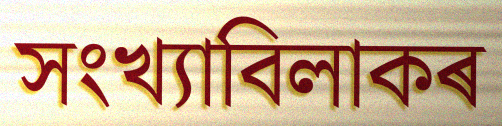
সংখ্যাবিলাকৰ